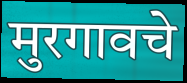
मुरगावचे